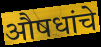
औषधांचे